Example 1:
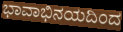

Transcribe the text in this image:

ಭಾವಾಭಿನಯದಿಂದ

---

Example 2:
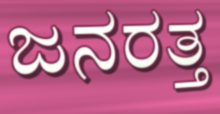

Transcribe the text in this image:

ಜನರತ್ತ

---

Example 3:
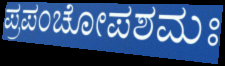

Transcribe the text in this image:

ಪ್ರಪಂಚೋಪಶಮಃ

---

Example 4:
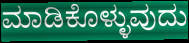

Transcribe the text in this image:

ಮಾಡಿಕೊಳ್ಳುವುದು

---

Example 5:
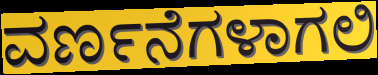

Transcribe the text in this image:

ವರ್ಣನೆಗಳಾಗಲಿ